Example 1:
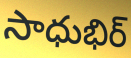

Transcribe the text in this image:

సాధుభిర్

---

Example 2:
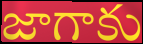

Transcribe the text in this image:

జాగాకు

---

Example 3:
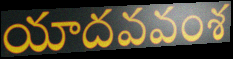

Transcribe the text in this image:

యాదవవంశ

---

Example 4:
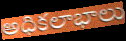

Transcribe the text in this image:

అధికలాభాలు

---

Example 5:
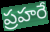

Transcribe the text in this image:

ప్రహరే